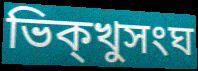
ভিক্খুসংঘ